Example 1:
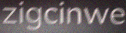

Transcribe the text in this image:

zigcinwe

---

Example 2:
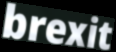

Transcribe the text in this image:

brexit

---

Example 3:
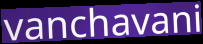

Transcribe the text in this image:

vanchavani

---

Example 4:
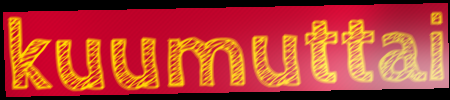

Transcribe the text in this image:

kuumuttai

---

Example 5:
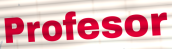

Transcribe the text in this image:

Profesor